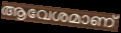
ആവേശമാണ്